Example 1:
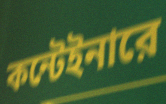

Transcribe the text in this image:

কন্টেইনারে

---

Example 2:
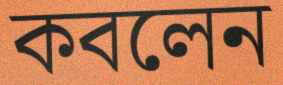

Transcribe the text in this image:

কবলেন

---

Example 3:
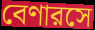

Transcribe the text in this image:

বেণারসে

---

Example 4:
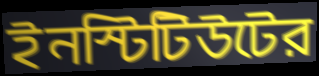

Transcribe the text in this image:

ইনস্টিটিউটের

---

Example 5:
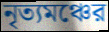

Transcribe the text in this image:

নৃত্যমঞ্চের